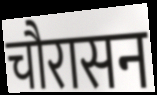
चौरासन